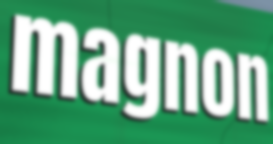
magnon